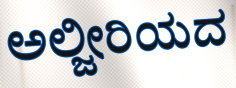
ಅಲ್ಜೀರಿಯದ